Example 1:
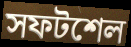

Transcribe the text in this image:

সফটশেল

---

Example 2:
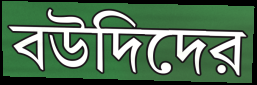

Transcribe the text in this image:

বউদিদের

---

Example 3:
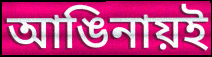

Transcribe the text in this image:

আঙিনায়ই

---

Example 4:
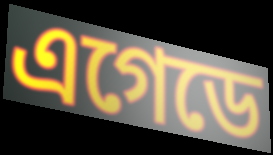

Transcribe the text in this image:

এগেডে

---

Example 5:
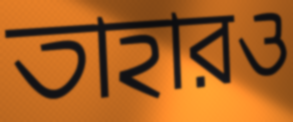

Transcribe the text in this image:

তাহারও